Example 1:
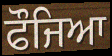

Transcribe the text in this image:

ਫੌਜਿਆ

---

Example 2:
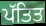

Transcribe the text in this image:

ਪੱਤਿਤ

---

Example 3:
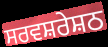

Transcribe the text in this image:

ਸਰਵਸ਼ਰੇਸ਼ਠ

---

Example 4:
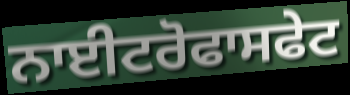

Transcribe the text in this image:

ਨਾਈਟਰੋਫਾਸਫੇਟ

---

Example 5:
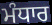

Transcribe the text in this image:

ਮੰਧਾਰ